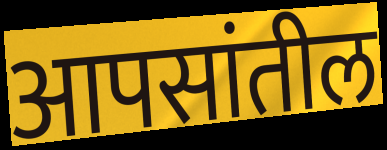
आपसांतील